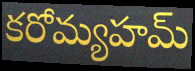
కరోమ్యహమ్